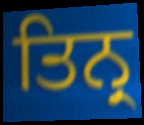
ਤਿਨ੍ਰ